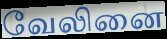
வேலினை